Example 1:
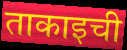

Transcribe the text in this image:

ताकाइची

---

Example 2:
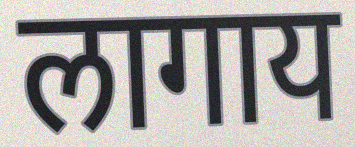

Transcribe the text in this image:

लागाय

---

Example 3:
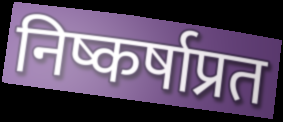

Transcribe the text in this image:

निष्कर्षाप्रत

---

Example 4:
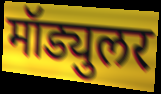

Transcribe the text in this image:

मॉड्युलर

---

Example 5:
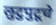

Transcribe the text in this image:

लुटुपुटूचे